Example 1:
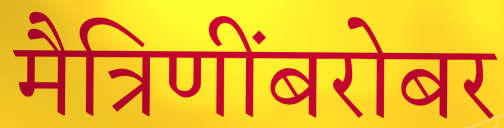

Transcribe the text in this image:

मैत्रिणींबरोबर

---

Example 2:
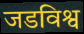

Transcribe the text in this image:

जडविश्व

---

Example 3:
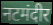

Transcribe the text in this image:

नटमंदीर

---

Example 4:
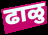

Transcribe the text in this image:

ढाळु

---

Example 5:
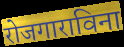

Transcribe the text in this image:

रोजगाराविना